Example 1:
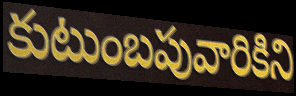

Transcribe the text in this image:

కుటుంబపువారికిని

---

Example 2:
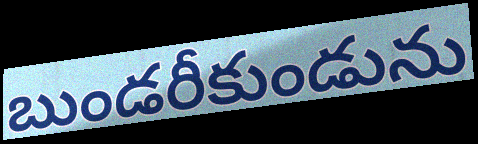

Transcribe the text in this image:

బుండరీకుండును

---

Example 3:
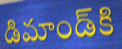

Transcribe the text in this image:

డిమాండ్‌కి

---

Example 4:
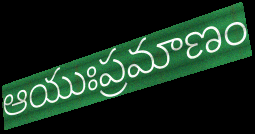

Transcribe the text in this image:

ఆయుఃప్రమాణం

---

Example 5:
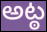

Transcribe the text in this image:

అట్ఠ